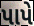
પાપે